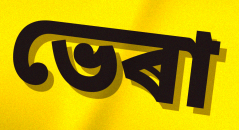
ভেৰা